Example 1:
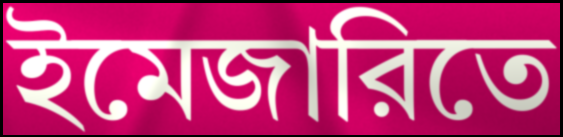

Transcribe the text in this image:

ইমেজারিতে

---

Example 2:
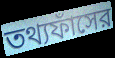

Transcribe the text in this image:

তথ্যফাঁসের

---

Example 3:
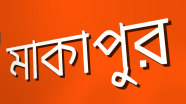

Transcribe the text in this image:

মাকাপুর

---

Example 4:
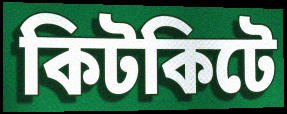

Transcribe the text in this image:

কিটকিটে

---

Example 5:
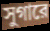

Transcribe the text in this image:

সুগারে